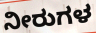
ನೀರುಗಳ